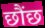
छौंछ